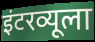
इंटरव्यूला